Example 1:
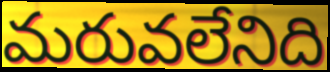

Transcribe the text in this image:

మరువలేనిది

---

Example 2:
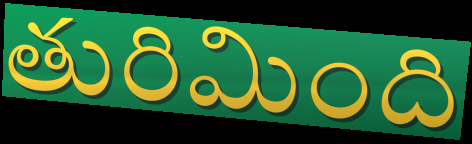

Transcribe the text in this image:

తురిమింది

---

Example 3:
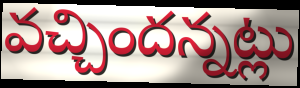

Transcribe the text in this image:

వచ్చిందన్నట్లు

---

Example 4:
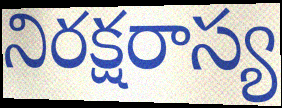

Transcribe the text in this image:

నిరక్షరాస్య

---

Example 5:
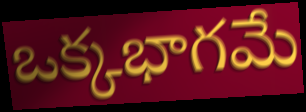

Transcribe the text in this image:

ఒక్కభాగమే